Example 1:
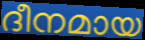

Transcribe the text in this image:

ദീനമായ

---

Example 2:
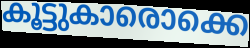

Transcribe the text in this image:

കൂട്ടുകാരൊക്കെ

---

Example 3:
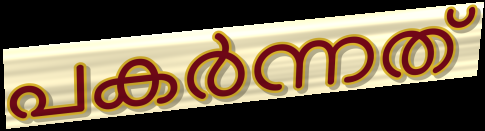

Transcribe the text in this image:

പകർന്നത്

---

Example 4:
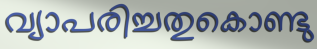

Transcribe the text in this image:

വ്യാപരിച്ചതുകൊണ്ടു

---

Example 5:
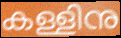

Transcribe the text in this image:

കള്ളിനു